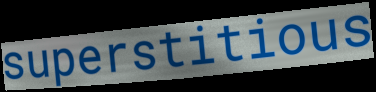
superstitious